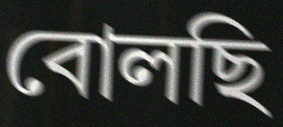
বোলছি